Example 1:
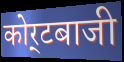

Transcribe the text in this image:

कोर्टबाजी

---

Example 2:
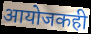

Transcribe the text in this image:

आयोजकही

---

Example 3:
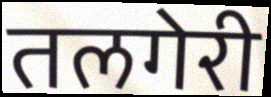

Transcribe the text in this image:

तलगेरी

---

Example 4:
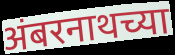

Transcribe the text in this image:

अंबरनाथच्या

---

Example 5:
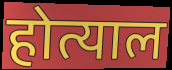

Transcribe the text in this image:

होत्याल